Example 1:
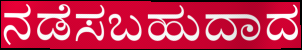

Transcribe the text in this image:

ನಡೆಸಬಹುದಾದ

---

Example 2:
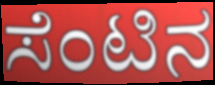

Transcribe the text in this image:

ಸೆಂಟಿನ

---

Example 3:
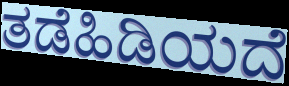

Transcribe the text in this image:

ತಡೆಹಿಡಿಯದೆ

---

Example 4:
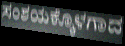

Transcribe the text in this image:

ಸಂಶಯಕ್ಕೊಳಗಾದ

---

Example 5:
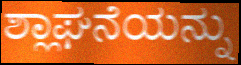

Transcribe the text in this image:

ಶ್ಲಾಘನೆಯನ್ನು